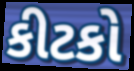
કીટકો